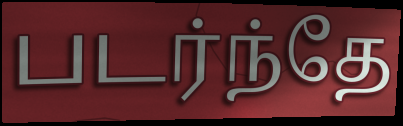
படர்ந்தே